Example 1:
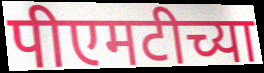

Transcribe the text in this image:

पीएमटीच्या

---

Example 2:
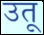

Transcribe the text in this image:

उतू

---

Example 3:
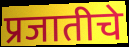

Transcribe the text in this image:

प्रजातीचे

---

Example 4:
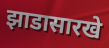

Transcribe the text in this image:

झाडासारखे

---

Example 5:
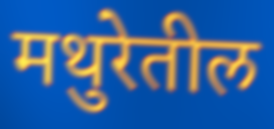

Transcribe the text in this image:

मथुरेतील